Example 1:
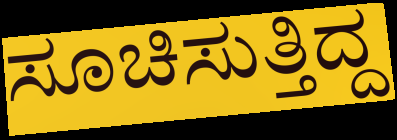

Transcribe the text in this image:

ಸೂಚಿಸುತ್ತಿದ್ದ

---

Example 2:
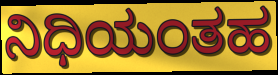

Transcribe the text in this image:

ನಿಧಿಯಂತಹ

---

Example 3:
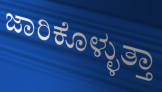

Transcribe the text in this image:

ಜಾರಿಕೊಳ್ಳುತ್ತಾ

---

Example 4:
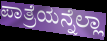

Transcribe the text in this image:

ಪಾತ್ರೆಯನ್ನೆಲ್ಲಾ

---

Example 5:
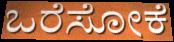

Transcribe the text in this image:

ಒರೆಸೋಕೆ